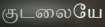
குடலையே